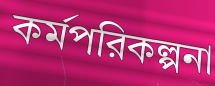
কর্মপরিকল্পনা